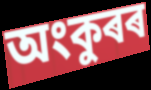
অংকুৰৰ